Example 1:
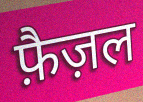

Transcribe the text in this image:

फ़ैज़ल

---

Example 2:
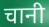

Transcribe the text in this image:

चानी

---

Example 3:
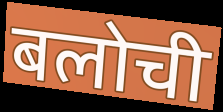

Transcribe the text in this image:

बलोची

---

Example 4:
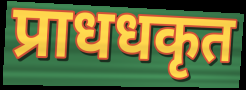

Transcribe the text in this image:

प्राधधकृत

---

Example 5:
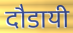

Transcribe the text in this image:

दौडायी